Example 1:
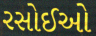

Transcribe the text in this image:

રસોઈઓ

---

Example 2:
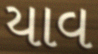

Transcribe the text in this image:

યાવ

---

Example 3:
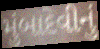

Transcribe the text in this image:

મુંબાદેવીનું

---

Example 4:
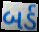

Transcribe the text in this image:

બર્ડ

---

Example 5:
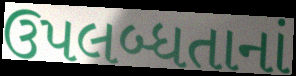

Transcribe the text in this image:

ઉપલબ્ધતાનાં